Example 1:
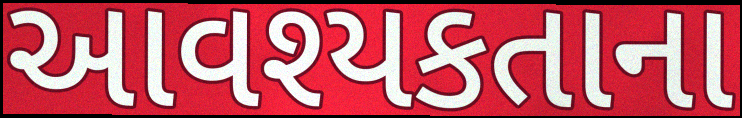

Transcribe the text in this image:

આવશ્યકતાના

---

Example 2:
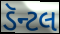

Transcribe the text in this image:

ડૅન્ટલ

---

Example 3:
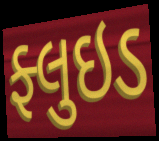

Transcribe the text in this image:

ફ્લુઇડ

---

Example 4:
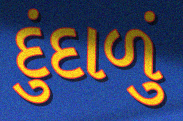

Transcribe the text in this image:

દુંદાળું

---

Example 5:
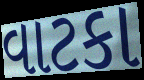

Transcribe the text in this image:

વાટકા